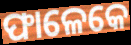
ଫାଳେକେ